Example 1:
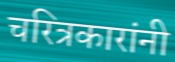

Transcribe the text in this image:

चरित्रकारांनी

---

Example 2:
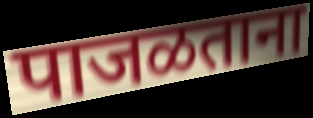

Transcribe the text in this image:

पाजळताना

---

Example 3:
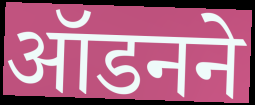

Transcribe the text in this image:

ऑडनने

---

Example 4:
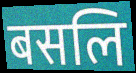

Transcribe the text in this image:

बसलि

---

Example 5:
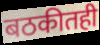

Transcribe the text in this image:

बठकीतही